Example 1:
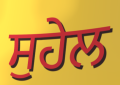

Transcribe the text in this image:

ਸੁਹੇਲ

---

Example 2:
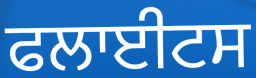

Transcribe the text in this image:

ਫਲਾਈਟਸ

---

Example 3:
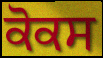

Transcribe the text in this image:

ਕੋਕਸ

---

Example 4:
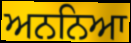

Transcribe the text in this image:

ਅਨਨਿਆ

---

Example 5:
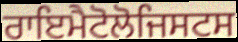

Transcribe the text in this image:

ਰਾਇਮੈਟੋਲੋਜਿਸਟਸ